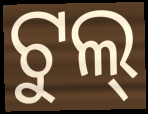
ଟୁଲ୍